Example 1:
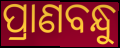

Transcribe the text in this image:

ପ୍ରାଣବନ୍ଧୁ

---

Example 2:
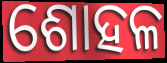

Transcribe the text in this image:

ଶୋହଳ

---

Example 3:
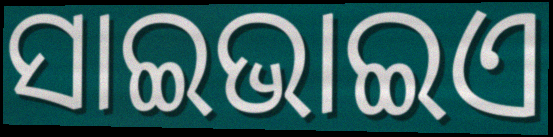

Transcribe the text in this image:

ସାଇଭାଇଏ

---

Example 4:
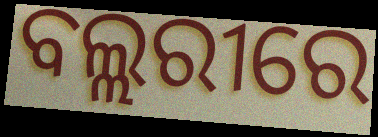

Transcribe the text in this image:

ବଲ୍ଲରୀରେ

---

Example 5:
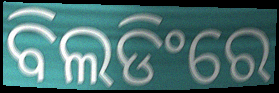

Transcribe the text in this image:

ବିଲଡିଂରେ